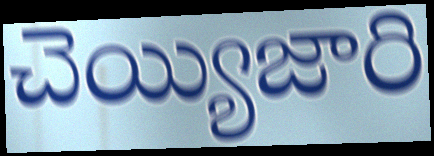
చెయ్యిజారి